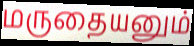
மருதையனும்